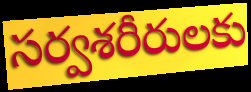
సర్వశరీరులకు